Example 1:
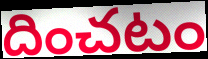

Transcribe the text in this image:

దించటం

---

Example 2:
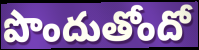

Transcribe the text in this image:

పొందుతోందో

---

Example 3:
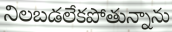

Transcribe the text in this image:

నిలబడలేకపోతున్నాను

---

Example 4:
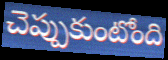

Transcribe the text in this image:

చెప్పుకుంటోంది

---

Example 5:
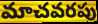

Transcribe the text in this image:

మాచవరపు